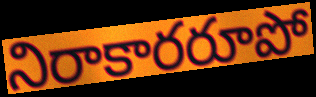
నిరాకారరూపో